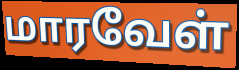
மாரவேள்